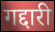
गद्दारी